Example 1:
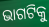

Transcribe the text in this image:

ଭାଗଟିକୁ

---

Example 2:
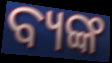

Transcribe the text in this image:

ବ୍ୟଙ୍କ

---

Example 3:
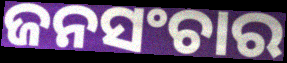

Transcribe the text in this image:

ଜନସଂଚାର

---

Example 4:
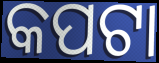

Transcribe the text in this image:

କପଟା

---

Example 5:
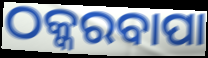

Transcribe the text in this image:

ଠକ୍କରବାପା